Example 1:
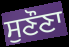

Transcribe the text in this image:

ਸੁਣੌਣਾ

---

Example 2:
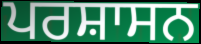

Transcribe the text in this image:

ਪਰਸ਼ਾਸਨ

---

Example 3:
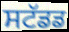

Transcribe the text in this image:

ਸਟੱਡਡ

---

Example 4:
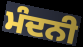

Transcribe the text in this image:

ਮੰਦਨੀ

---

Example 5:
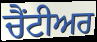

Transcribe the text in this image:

ਚੈਂਟੀਅਰ